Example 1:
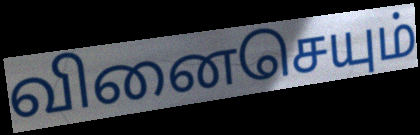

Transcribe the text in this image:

வினைசெயும்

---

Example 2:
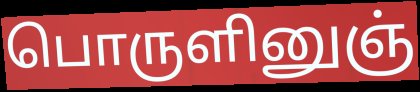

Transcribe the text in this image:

பொருளினுஞ்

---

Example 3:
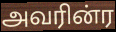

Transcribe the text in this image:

அவரின்ர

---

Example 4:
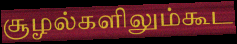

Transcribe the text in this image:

சூழல்களிலும்கூட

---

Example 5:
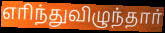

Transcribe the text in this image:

எரிந்துவிழுந்தார்